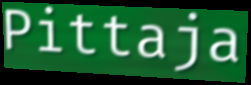
Pittaja